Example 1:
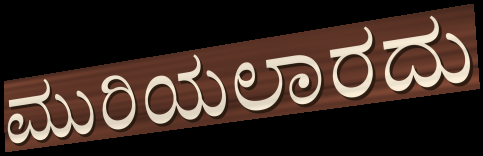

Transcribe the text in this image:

ಮುರಿಯಲಾರದು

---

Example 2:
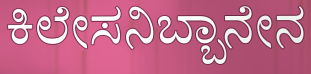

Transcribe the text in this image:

ಕಿಲೇಸನಿಬ್ಬಾನೇನ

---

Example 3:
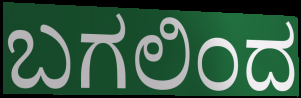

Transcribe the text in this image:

ಬಗಲಿಂದ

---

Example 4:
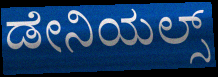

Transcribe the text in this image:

ಡೇನಿಯಲ್ಸ್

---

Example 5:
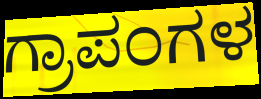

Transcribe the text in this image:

ಗ್ರಾಪಂಗಳ